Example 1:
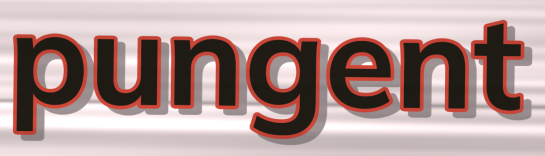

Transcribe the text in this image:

pungent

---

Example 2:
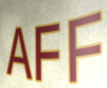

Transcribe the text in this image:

AFF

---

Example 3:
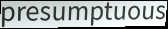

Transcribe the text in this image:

presumptuous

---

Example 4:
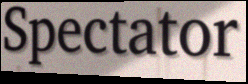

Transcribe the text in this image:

Spectator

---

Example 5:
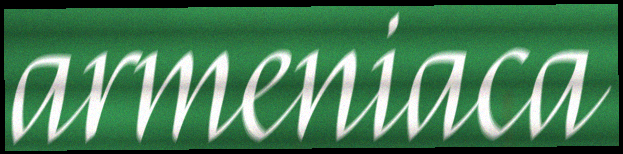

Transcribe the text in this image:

armeniaca